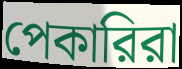
পেকারিরা